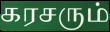
கரசரும்